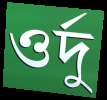
ওর্দু